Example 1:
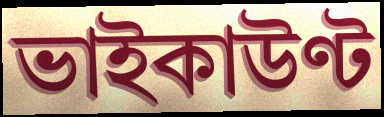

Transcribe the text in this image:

ভাইকাউণ্ট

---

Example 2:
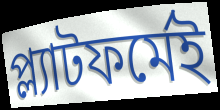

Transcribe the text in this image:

প্ল্যাটফর্মেই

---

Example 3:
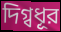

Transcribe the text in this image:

দিগ্বধূর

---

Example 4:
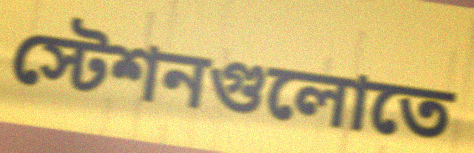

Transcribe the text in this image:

স্টেশনগুলোতে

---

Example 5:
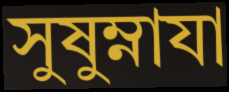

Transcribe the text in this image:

সুষুম্নাযা